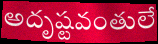
అదృష్టవంతులే